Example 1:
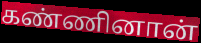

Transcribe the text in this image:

கண்ணினான்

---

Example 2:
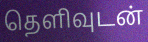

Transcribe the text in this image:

தெளிவுடன்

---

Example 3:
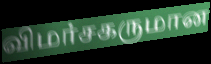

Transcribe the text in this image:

விமர்சகருமான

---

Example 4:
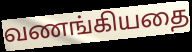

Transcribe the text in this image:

வணங்கியதை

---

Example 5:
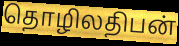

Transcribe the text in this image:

தொழிலதிபன்